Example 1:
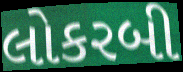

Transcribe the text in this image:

લોકરબી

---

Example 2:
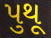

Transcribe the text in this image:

પુથૂ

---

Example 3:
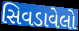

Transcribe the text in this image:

સિવડાવેલો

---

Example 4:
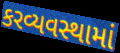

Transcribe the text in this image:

કરવ્યવસ્થામાં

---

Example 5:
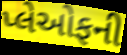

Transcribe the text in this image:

પ્લેઓફની